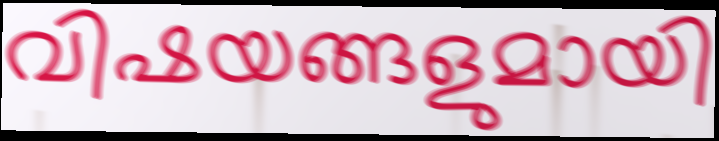
വിഷയങ്ങളുമായി